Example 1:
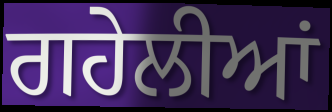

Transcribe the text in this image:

ਗਹੇਲੀਆਂ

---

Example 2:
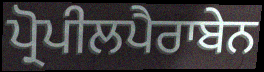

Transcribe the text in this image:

ਪ੍ਰੋਪੀਲਪੈਰਾਬੇਨ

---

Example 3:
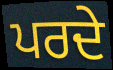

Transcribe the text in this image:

ਪਰਦੇ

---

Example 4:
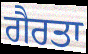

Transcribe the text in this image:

ਗੈਰਤਾ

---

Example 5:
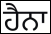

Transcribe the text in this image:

ਹੈਨਾ